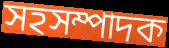
সহসম্পাদক